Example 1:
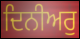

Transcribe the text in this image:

ਦਿਨੀਅਰੁ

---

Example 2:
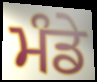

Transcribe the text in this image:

ਮੰਡੇ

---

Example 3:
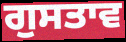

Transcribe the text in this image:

ਗੁਸਤਾਵ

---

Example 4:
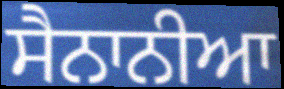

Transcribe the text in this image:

ਸੈਨਾਨੀਆ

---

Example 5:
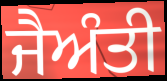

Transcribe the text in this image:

ਜੈਅੰਤੀ